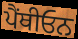
ਪੈਂਥੀਓਨ